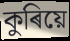
কুৰিয়ে